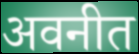
अवनीत